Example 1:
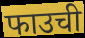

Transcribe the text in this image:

फाउची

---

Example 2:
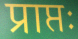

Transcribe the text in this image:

प्राप्तः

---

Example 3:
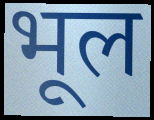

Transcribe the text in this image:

भूल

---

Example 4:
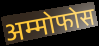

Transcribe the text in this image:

अम्मोफोस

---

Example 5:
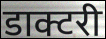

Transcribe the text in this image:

डाक्टरी